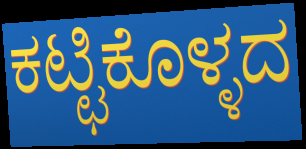
ಕಟ್ಟಿಕೊಳ್ಳದ